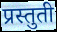
प्रस्तुती